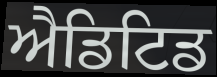
ਐਡਿਟਿਡ